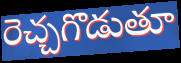
రెచ్చగొడుతూ